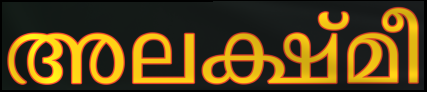
അലക്ഷ്മീ